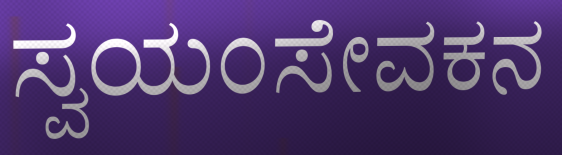
ಸ್ವಯಂಸೇವಕನ